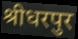
श्रीधरपुर